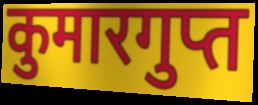
कुमारगुप्त